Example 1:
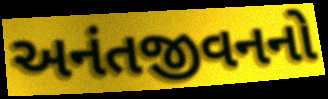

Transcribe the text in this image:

અનંતજીવનનો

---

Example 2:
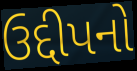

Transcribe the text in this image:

ઉદ્દીપનો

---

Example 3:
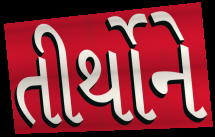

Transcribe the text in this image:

તીર્થોને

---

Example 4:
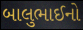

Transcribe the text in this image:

બાલુભાઈનો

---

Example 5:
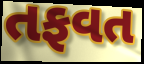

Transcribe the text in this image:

તફવત